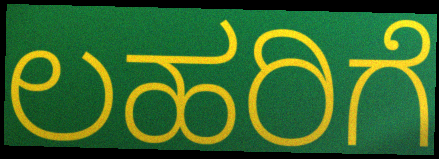
ಲಹರಿಗೆ